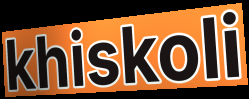
khiskoli